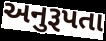
અનુરૂપતા